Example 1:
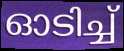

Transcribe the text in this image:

ഓടിച്ച്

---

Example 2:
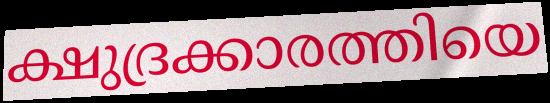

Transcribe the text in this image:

ക്ഷുദ്രക്കാരത്തിയെ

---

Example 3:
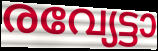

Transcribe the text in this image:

രവ്യേട്ടാ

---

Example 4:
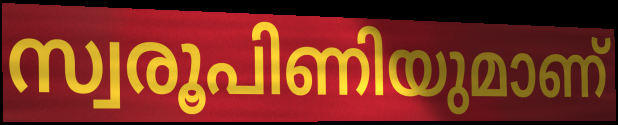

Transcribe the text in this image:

സ്വരൂപിണിയുമാണ്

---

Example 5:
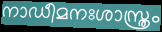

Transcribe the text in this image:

നാഡീമനഃശാസ്ത്രം